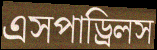
এসপাড্রিলস